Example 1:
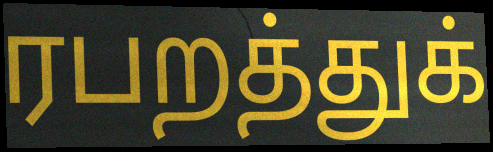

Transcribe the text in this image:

ரபறத்துக்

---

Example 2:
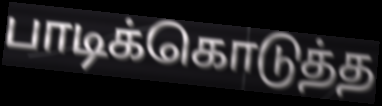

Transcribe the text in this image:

பாடிக்கொடுத்த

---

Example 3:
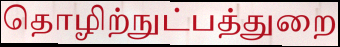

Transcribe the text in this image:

தொழிற்நுட்பத்துறை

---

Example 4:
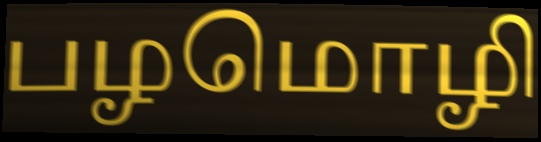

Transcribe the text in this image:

பழமொழி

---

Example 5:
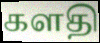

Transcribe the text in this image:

களதி